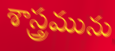
శాస్త్రమును